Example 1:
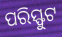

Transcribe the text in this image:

ପରିସ୍ଫୁଟ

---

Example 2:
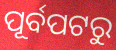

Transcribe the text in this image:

ପୂର୍ବପଟରୁ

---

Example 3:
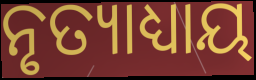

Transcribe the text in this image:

ନୃତ୍ୟାଧ୍ୟାୟ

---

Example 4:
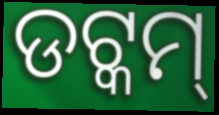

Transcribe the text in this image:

ଡଟ୍କମ୍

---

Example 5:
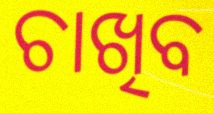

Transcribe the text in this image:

ଚାଖିବ